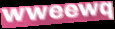
wweewq